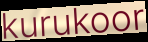
kurukoor